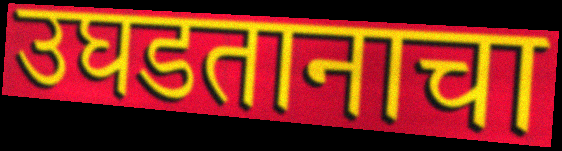
उघडतानाचा